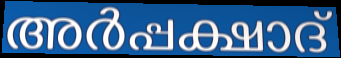
അർപ്പക്ഷാദ്